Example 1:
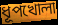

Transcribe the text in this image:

ধূপখোলা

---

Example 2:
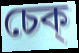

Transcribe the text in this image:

চেক্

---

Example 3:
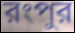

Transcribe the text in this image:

রংপুর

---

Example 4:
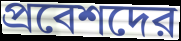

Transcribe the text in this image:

প্রবেশদের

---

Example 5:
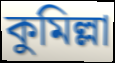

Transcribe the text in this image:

কুমিল্লা